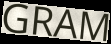
GRAM